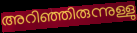
അറിഞ്ഞിരുന്നുള്ളു